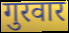
गुरवार